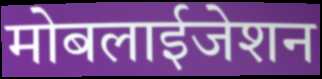
मोबलाईजेशन